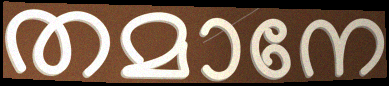
തമാനേ